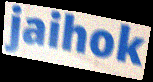
jaihok